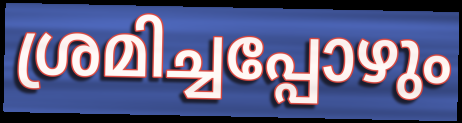
ശ്രമിച്ചപ്പോഴും